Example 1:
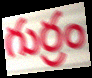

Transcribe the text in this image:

గుర్రం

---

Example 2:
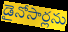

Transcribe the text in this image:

డైనోసార్లను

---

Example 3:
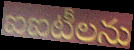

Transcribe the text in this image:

ఐఐటీలను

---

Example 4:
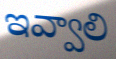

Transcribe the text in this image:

ఇవ్వాలి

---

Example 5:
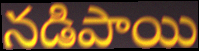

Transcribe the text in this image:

నడిపాయి